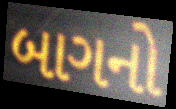
બાગનો